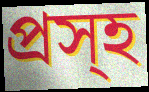
প্রস্হ